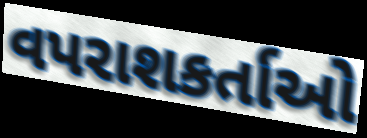
વપરાશકર્તાઓ